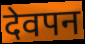
देवपन